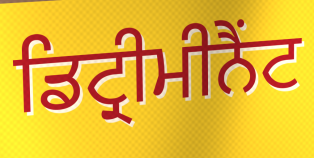
ਡਿਟ੍ਰੀਮੀਨੈਂਟ